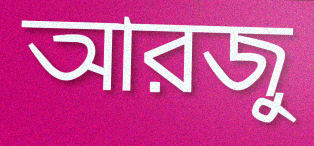
আরজু